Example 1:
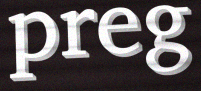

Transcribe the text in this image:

preg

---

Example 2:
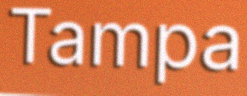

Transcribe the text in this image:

Tampa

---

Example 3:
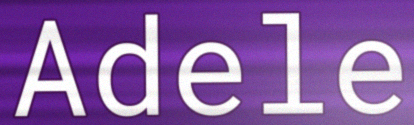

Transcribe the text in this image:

Adele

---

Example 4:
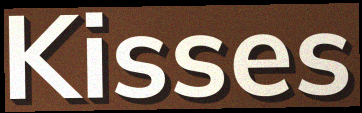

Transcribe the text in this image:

Kisses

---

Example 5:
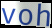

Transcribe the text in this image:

voh